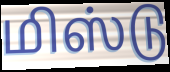
மிஸ்டு